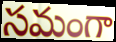
సమంగా